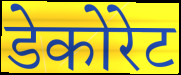
डेकोरेट